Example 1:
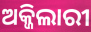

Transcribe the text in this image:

ଅକ୍ଜିଲାରୀ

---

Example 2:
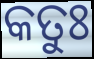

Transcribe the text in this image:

କତୁଃ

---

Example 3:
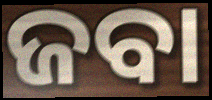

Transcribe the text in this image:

ଜବା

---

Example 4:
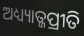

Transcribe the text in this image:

ଅଧ୍ୟ୍ୟାତ୍ଜପ୍ରୀତି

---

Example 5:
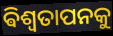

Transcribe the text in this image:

ଵିଶ୍ଵତାପନକୁ